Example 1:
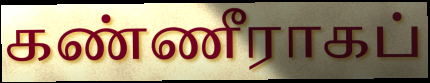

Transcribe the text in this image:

கண்ணீராகப்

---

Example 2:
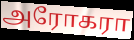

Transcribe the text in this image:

அரோகரா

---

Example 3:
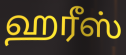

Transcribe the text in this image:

ஹரீஸ்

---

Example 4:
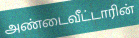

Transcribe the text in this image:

அண்டைவீட்டாரின்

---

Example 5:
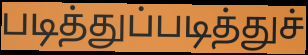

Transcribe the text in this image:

படித்துப்படித்துச்